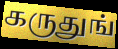
கருதுங்